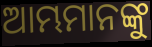
ଆମ୍ଭମାନଙ୍କୁ